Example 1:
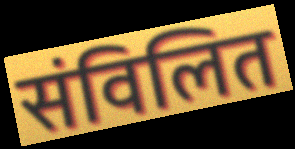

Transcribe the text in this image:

संविलित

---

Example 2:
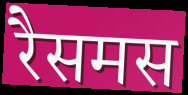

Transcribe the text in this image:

रैसमस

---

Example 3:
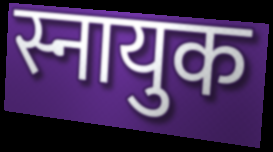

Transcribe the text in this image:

स्नायुक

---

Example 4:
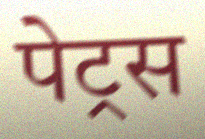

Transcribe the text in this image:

पेट्रस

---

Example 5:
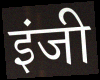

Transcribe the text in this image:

इंजी